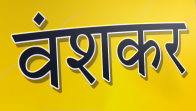
वंशकर